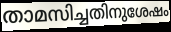
താമസിച്ചതിനുശേഷം